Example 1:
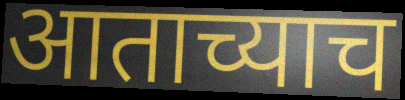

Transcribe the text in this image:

आताच्याच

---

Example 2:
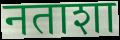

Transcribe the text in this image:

नताशा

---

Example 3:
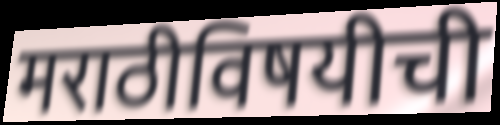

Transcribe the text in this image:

मराठीविषयीची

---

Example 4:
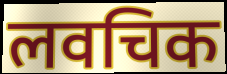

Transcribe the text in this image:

लवचिक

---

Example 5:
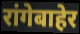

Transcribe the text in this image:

रांगेबाहेर